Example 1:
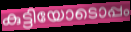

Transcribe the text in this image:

കുട്ടിയോടൊപ്പം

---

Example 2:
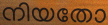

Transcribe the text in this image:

നിയതോ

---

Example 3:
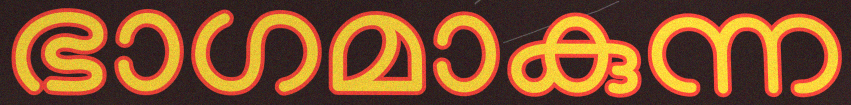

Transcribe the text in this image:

ഭാഗമാകുന്ന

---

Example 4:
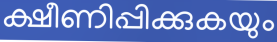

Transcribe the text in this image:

ക്ഷീണിപ്പിക്കുകയും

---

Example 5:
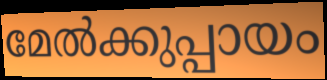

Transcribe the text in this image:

മേൽക്കുപ്പായം